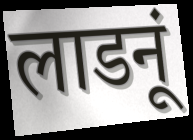
लाडनूं